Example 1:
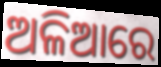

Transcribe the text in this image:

ଅଳିଆରେ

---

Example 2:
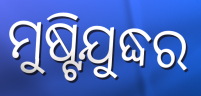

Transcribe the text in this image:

ମୁଷ୍ଟିଯୁଦ୍ଧର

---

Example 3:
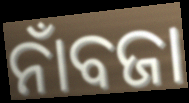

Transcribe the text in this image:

ନାଁବଜା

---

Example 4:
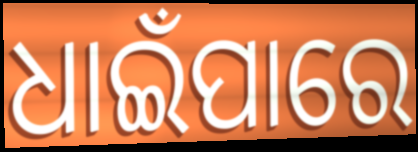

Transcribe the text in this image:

ଧାଇଁପାରେ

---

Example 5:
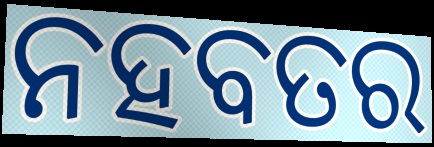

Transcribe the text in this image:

ନହବତର